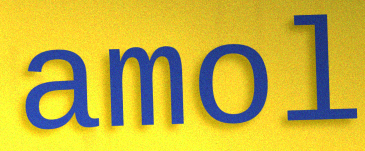
amol